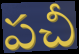
పచీ